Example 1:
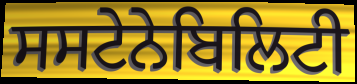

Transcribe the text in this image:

ਸਸਟੇਨੇਬਿਲਿਟੀ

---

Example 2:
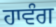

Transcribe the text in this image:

ਹਾਵੰਗ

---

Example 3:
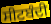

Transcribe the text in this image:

ਸੀਟਬੰਦੀ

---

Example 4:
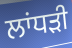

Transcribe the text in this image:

ਲਾਂਧੜੀ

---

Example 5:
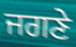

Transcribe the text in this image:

ਜਗਣੇ